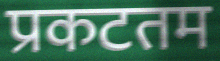
प्रकटतम